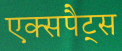
एक्सपैट्स